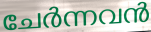
ചേർന്നവൻ